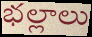
భల్లాలు